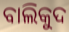
ବାଲିକୁଦ